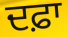
ਦਫ਼ਾ